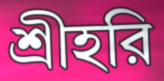
শ্রীহরি